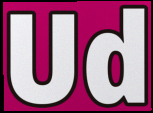
Ud